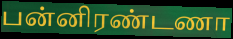
பன்னிரண்டணா